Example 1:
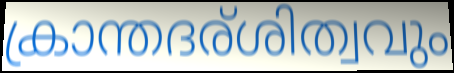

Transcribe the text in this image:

ക്രാന്തദര്ശിത്വവും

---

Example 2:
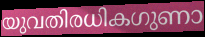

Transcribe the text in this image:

യുവതിരധികഗുണാ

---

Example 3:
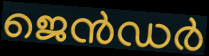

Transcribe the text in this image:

ജെൻഡർ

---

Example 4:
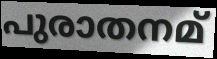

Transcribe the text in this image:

പുരാതനമ്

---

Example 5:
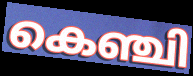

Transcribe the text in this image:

കെഞ്ചി